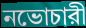
নভোচারী